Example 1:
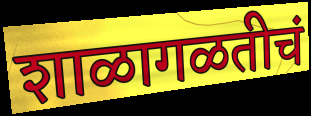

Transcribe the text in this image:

शाळागळतीचं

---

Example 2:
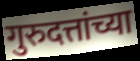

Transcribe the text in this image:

गुरुदत्तांच्या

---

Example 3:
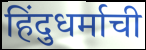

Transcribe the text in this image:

हिंदुधर्माची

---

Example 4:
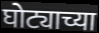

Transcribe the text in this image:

घोट्याच्या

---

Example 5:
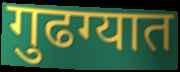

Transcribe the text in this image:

गुढग्यात